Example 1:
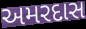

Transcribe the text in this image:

અમરદાસ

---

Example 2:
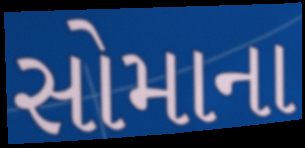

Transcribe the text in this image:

સોમાના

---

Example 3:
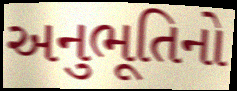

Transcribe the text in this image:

અનુભૂતિનો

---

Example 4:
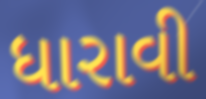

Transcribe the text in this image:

ધારાવી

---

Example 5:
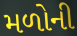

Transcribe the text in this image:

મળોની